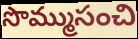
సొమ్ముసంచి